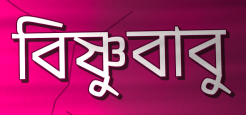
বিষ্ণুবাবু